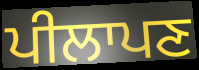
ਪੀਲਾਪਣ